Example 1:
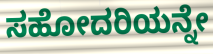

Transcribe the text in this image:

ಸಹೋದರಿಯನ್ನೇ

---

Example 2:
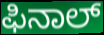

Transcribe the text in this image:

ಫಿನಾಲ್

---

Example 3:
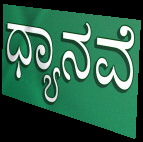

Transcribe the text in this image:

ಧ್ಯಾನವೆ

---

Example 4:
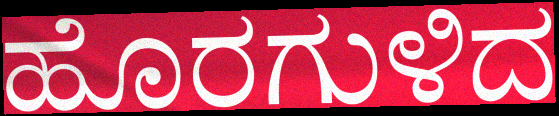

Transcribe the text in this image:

ಹೊರಗುಳಿದ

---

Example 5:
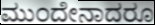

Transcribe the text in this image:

ಮುಂದೇನಾದರೂ